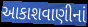
આકાશવાણીનાં